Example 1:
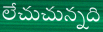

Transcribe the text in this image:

లేచుచున్నది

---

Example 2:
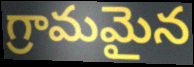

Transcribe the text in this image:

గ్రామమైన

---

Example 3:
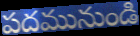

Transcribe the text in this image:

పదమునుండి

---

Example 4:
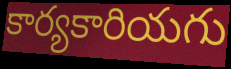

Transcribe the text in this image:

కార్యకారియగు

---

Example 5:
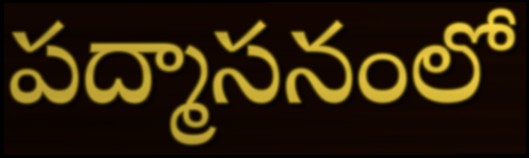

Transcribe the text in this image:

పద్మాసనంలో